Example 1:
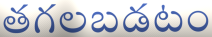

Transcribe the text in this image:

తగలబడటం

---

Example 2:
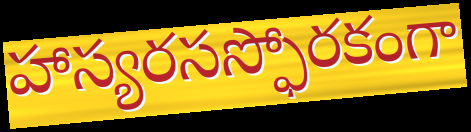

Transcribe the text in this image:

హాస్యరసస్ఫోరకంగా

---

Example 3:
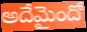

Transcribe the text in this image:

అదేమైందో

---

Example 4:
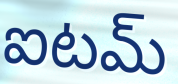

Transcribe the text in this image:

ఐటమ్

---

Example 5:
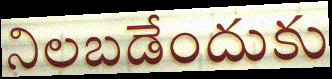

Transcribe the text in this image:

నిలబడేందుకు